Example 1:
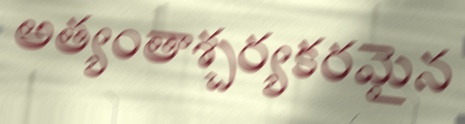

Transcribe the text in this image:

అత్యంతాశ్చర్యకరమైన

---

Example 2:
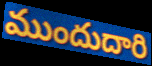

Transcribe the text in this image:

ముందుదారి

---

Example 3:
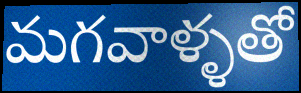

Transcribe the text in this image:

మగవాళ్ళతో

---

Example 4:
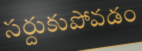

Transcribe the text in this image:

సర్దుకుపోవడం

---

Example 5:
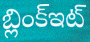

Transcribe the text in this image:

బ్లింక్ఇట్